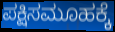
ಪಕ್ಷಿಸಮೂಹಕ್ಕೆ